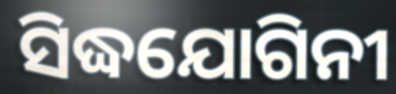
ସିଦ୍ଧଯୋଗିନୀ